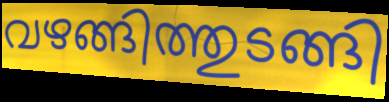
വഴങ്ങിത്തുടങ്ങി